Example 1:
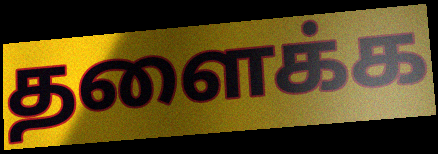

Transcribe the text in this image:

தளைக்க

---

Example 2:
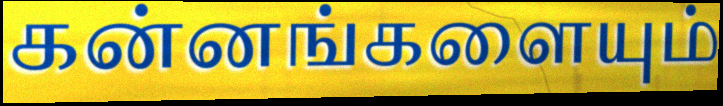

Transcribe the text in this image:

கன்னங்களையும்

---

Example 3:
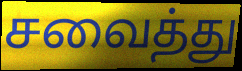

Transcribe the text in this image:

சவைத்து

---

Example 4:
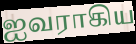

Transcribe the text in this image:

ஐவராகிய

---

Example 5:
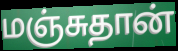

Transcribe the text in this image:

மஞ்சுதான்